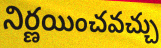
నిర్ణయించవచ్చు